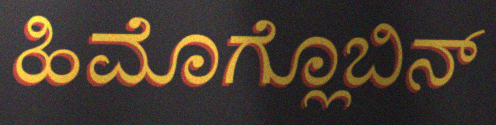
ಹಿಮೊಗ್ಲೊಬಿನ್